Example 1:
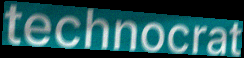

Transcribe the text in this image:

technocrat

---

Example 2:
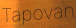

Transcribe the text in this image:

Tapovan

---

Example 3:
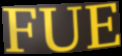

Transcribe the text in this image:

FUE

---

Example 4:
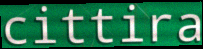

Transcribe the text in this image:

cittira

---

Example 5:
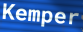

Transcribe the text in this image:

Kemper